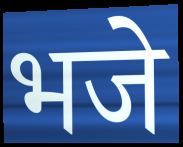
भजे